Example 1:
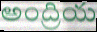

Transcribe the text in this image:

అంద్రియ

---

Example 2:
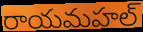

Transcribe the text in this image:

రాయమహల్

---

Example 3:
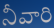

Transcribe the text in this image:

నీవారి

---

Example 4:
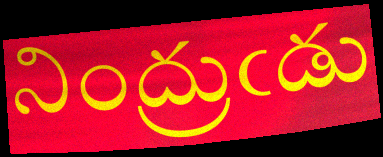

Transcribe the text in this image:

నింద్రుఁడు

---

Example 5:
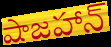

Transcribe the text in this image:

షాజహాన్